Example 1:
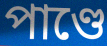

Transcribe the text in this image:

পাণ্ডে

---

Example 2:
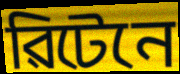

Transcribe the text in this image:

ৱিটেনে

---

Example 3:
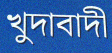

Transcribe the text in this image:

খুদাবাদী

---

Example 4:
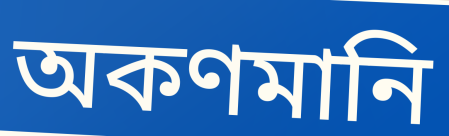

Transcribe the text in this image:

অকণমানি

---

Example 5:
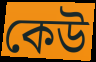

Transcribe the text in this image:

কেউ